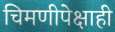
चिमणीपेक्षाही